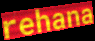
rehana